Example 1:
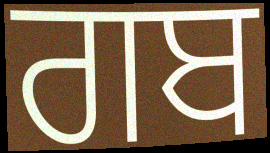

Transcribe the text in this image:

ਗਬ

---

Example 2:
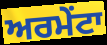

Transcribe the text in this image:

ਅਰਮੇਂਟਾ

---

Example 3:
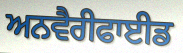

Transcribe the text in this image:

ਅਨਵੈਰੀਫਾਈਡ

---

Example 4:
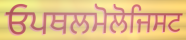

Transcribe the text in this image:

ਓਪਥਲਮੋਲੋਜਿਸਟ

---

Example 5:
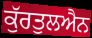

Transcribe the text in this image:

ਕੁੱਰਤੁਲਐਨ